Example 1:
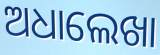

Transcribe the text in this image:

ଅଧାଲେଖା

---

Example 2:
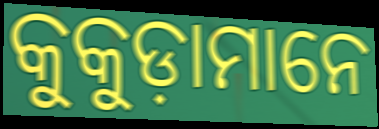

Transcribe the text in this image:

କୁକୁଡ଼ାମାନେ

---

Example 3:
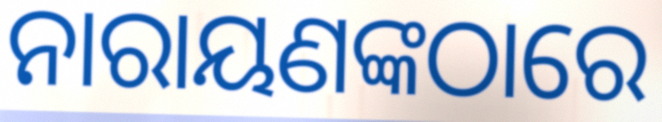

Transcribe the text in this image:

ନାରାୟଣଙ୍କଠାରେ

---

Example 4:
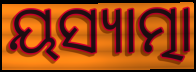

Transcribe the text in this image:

ୟସ୍ୟାତ୍ମା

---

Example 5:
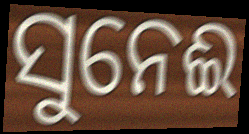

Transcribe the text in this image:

ସୁନେଈ